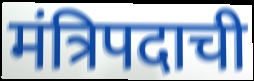
मंत्रिपदाची